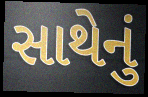
સાથેનું